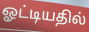
ஓட்டியதில்